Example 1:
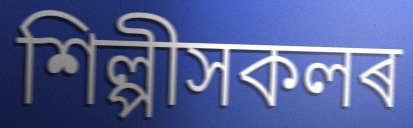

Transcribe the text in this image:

শিল্পীসকলৰ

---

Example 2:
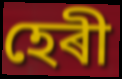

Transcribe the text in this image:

হেৰী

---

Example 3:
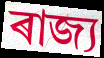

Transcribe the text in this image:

ৰাজ্য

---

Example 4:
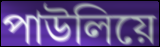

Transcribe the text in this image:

পাউলিয়ে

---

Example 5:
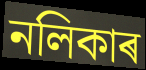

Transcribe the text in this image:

নলিকাৰ